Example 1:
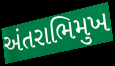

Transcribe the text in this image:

અંતરાભિમુખ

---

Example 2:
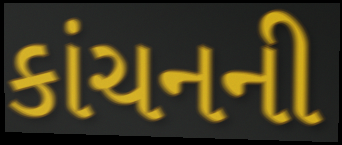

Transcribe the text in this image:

કાંચનની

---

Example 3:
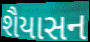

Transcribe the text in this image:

શૈયાસન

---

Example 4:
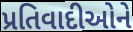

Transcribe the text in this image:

પ્રતિવાદીઓને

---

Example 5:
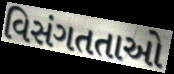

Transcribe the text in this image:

વિસંગતતાઓ